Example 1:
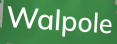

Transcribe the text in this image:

Walpole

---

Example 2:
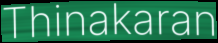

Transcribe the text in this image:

Thinakaran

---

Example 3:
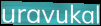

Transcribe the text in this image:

uravukal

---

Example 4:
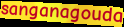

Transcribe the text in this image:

sanganagouda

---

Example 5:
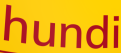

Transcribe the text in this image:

hundi